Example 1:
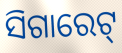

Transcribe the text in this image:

ସିଗାରେଟ୍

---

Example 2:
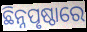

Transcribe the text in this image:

ଛିନ୍ନପୃଷ୍ଠାରେ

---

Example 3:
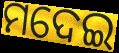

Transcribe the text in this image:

ମଦେଇ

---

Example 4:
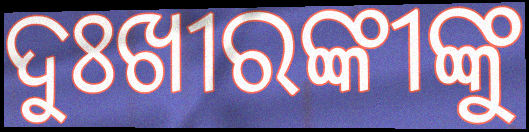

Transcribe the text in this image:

ଦୁଃଖୀରଙ୍କୀଙ୍କୁ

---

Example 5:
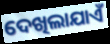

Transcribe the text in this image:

ଦେଖିଲାଯାଏଁ